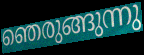
ഞെരുങ്ങുന്നു